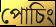
পোচিং